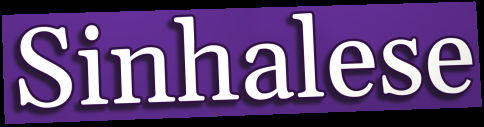
Sinhalese